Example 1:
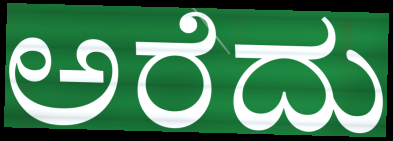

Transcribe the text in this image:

ಅರೆದು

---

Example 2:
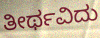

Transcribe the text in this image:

ತೀರ್ಥವಿದು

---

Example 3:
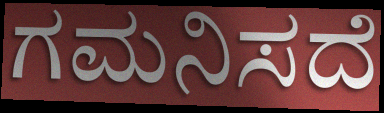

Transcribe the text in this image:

ಗಮನಿಸದೆ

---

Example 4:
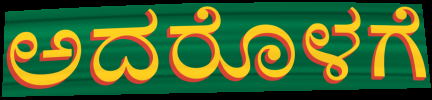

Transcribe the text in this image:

ಅದರೊಳಗೆ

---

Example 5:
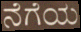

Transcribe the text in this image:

ನೆಗೆಯ